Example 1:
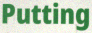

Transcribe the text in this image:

Putting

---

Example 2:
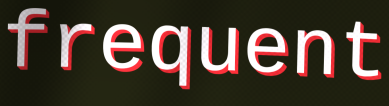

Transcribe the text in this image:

frequent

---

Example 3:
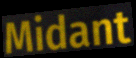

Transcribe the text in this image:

Midant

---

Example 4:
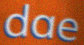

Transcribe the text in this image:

dae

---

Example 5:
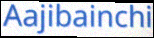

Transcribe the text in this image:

Aajibainchi